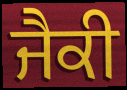
ਜੈਕੀ